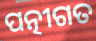
ପତ୍ନୀଗତ